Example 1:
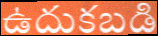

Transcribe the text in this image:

ఉదుకబడి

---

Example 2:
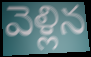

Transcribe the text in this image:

వెళ్లిన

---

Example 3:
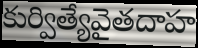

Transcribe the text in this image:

కుర్విత్యేవైతదాహ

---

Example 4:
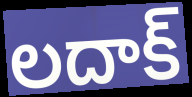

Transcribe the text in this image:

లదాక్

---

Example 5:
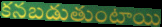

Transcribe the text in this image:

కనబడుతుంటాయి